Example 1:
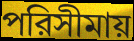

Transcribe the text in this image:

পরিসীমায়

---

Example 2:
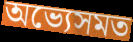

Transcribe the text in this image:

অভ্যেসমত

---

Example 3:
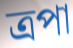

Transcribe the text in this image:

ত্রপা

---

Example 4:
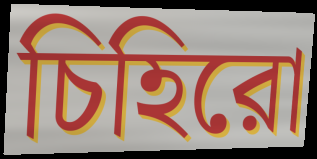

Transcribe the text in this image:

চিহিরো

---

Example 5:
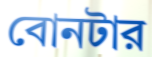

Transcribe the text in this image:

বোনটার